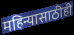
महिन्यासाठीही